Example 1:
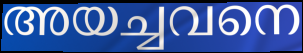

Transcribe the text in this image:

അയച്ചവനെ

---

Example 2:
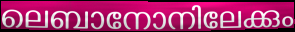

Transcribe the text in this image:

ലെബാനോനിലേക്കും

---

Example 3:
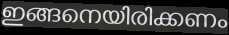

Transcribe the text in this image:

ഇങ്ങനെയിരിക്കണം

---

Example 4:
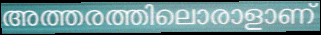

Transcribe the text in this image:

അത്തരത്തിലൊരാളാണ്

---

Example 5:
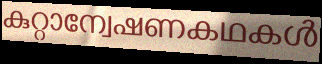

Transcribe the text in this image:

കുറ്റാന്വേഷണകഥകൾ